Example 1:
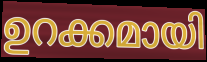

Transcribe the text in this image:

ഉറക്കമായി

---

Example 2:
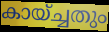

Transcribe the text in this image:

കായ്ച്ചതും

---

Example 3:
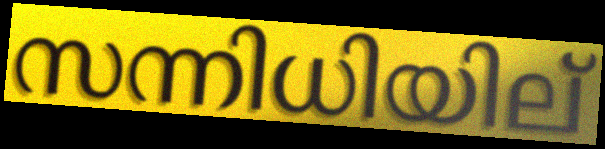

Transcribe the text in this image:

സന്നിധിയില്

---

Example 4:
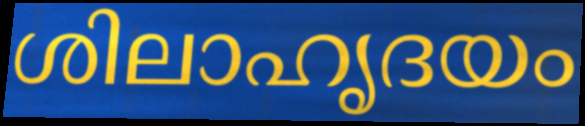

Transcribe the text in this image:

ശിലാഹൃദയം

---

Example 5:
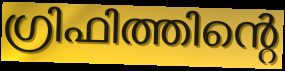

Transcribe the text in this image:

ഗ്രിഫിത്തിന്റെ